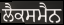
ਲੈਕਸਮੈਨ